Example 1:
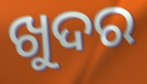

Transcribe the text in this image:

ଖୁଦର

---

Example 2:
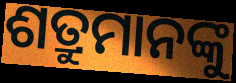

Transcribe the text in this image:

ଶତ୍ରୁମାନଙ୍କୁ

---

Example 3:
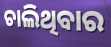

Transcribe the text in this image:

ଚାଲିଥିବାର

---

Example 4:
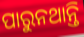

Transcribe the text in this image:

ପାରୁନଥାନ୍ତି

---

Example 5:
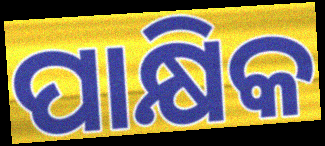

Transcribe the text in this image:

ପାକ୍ଷିକ